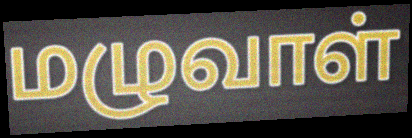
மழுவாள்